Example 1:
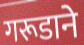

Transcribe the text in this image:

गरूडाने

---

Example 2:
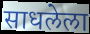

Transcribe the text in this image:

साधलेला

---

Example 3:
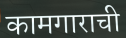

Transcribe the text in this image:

कामगाराची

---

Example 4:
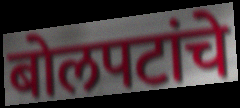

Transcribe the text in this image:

बोलपटांचे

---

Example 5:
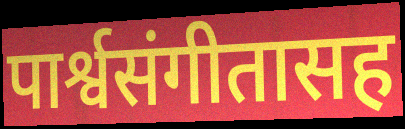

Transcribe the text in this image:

पार्श्वसंगीतासह